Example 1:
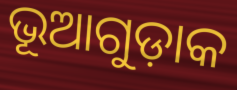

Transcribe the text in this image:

ଭୂଆଗୁଡ଼ାକ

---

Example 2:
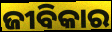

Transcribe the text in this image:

ଜୀବିକାର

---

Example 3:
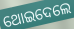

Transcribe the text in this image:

ଥୋଇଦେଲେ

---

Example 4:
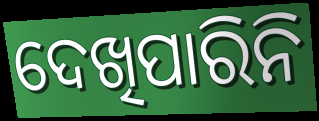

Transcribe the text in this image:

ଦେଖିପାରିନି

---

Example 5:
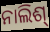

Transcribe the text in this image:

ନାଲିଶ୍